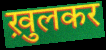
ख़ुलकर